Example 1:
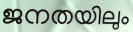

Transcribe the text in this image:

ജനതയിലും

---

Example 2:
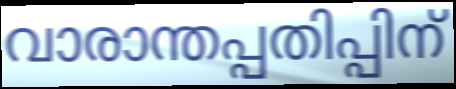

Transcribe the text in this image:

വാരാന്തപ്പതിപ്പിന്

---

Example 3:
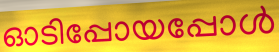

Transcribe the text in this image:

ഓടിപ്പോയപ്പോൾ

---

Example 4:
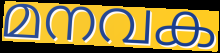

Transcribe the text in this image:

മനവക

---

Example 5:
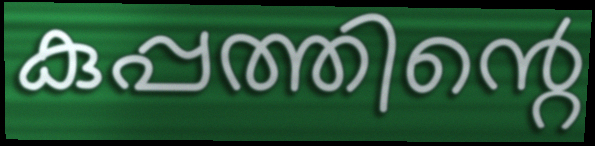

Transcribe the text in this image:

കുപ്പത്തിന്റെ